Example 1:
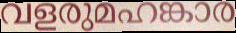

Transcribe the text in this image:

വളരുമഹങ്കാര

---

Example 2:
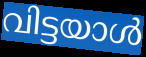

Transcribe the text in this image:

വിട്ടയാൾ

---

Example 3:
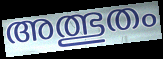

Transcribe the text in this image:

അത്ഭുതം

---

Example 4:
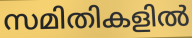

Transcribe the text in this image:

സമിതികളിൽ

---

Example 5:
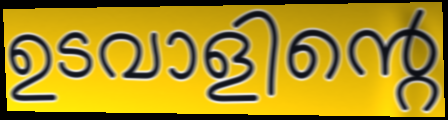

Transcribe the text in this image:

ഉടവാളിന്റെ